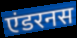
एंडरनस